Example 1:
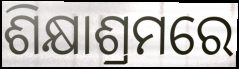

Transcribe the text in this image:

ଶିକ୍ଷାଶ୍ରମରେ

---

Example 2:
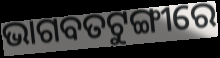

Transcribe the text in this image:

ଭାଗବତଟୁଙ୍ଗୀରେ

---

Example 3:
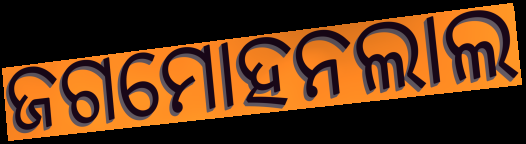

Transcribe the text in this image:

ଜଗମୋହନଲାଲ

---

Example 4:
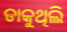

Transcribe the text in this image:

ଡାକୁଥିଲି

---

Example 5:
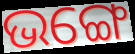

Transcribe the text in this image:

ଭଙ୍ଗେ